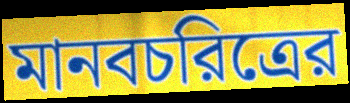
মানবচরিত্রের